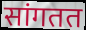
सांगतत